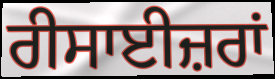
ਰੀਸਾਈਜ਼ਰਾਂ